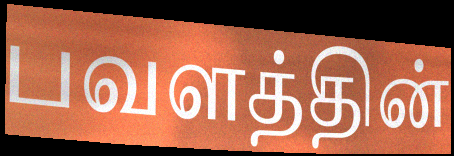
பவளத்தின்